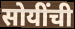
सोयींची